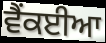
ਵੈਂਕਈਆ